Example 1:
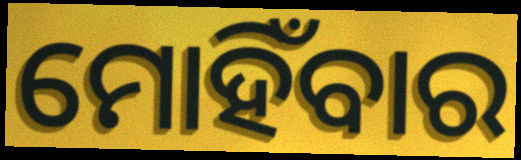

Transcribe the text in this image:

ମୋହିଁବାର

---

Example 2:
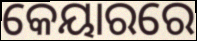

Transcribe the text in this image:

କେୟାରରେ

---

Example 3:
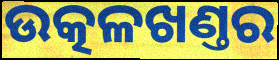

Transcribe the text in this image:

ଉତ୍କଳଖଣ୍ତର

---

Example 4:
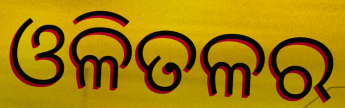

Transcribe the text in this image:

ଓଳିତଳର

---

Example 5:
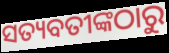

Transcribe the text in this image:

ସତ୍ୟବତୀଙ୍କଠାରୁ